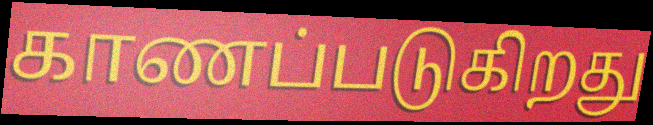
காணப்படுகிறது